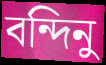
বন্দিনু